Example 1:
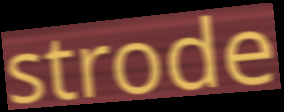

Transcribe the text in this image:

strode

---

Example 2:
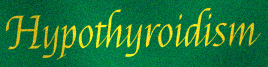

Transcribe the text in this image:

Hypothyroidism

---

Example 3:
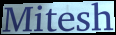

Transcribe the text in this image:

Mitesh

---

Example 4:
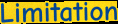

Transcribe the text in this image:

Limitation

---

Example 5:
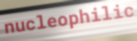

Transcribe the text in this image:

nucleophilic